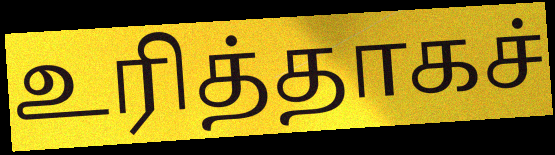
உரித்தாகச்